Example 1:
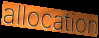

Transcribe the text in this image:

allocation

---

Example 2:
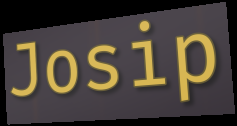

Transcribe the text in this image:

Josip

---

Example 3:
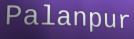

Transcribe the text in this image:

Palanpur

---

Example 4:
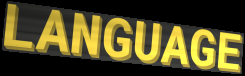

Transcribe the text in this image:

LANGUAGE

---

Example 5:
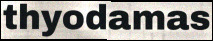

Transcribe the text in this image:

thyodamas